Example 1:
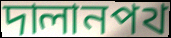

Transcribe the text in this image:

দালানপথ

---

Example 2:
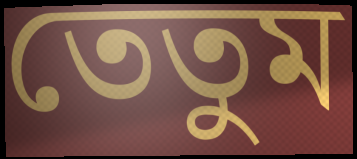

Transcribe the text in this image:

তেতুম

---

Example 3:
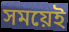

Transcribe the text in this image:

সময়েই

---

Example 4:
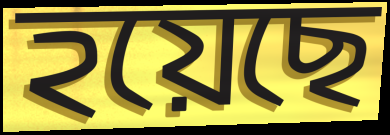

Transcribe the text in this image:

হয়েছে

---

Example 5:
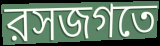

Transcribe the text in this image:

রসজগতে